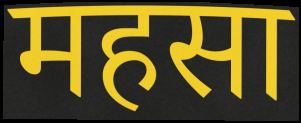
महसा